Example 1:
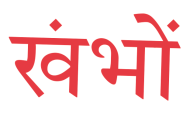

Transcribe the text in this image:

खंभों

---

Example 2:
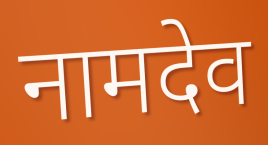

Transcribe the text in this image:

नामदेव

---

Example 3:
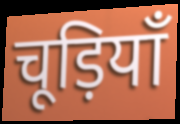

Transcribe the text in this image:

चूड़ियाँ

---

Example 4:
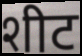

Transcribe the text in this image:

शीट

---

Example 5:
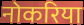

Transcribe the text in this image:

नोकरिया